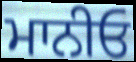
ਮਾਨੀਓ